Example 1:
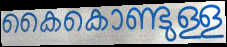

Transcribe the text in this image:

കൈകൊണ്ടുള്ള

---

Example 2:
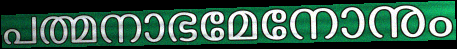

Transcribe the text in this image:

പത്മനാഭമേനോനും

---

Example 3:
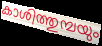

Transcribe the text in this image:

കാശിത്തുമ്പയും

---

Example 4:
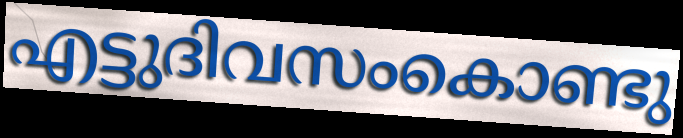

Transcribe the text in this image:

എട്ടുദിവസംകൊണ്ടു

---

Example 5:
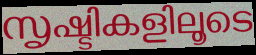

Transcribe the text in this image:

സൃഷ്ടികളിലൂടെ